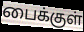
பைக்குள்